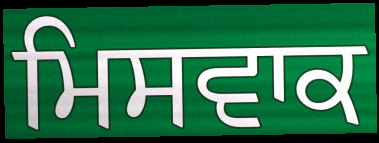
ਮਿਸਵਾਕ